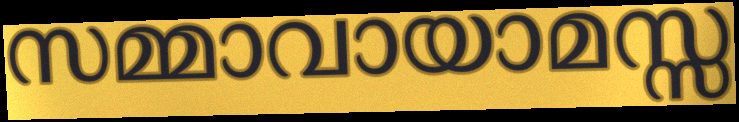
സമ്മാവായാമസ്സ